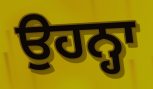
ਉਹਨ੍ਹਾ